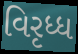
વિરૃધ્ધ